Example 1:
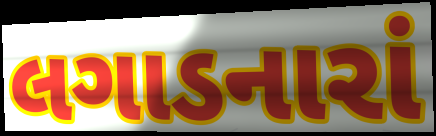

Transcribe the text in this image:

લગાડનારાં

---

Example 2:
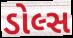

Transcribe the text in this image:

ડોલ્સ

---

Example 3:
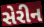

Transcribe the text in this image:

સેરીન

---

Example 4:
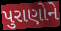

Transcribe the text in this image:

પુરાણોને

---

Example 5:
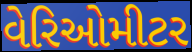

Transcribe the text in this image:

વેરિઓમીટર